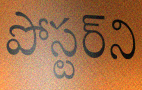
పోస్టర్‌ని